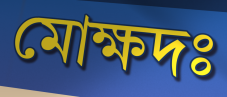
মোক্ষদঃ